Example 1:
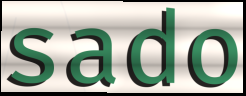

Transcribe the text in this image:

sado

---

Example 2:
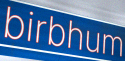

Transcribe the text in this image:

birbhum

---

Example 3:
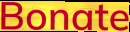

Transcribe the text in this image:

Bonate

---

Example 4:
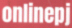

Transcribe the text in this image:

onlinepj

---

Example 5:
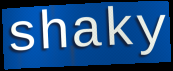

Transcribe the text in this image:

shaky